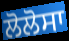
ਲੋਲੋਸਾ